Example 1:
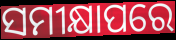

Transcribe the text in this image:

ସମୀକ୍ଷାପରେ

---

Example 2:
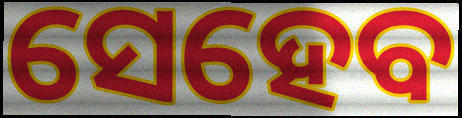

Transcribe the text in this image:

ସେହେବ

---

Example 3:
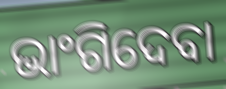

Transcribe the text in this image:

ଭାଂଗିଦେବା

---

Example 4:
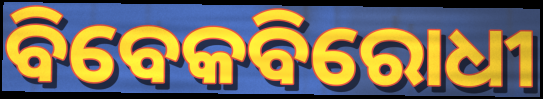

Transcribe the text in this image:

ବିବେକବିରୋଧୀ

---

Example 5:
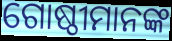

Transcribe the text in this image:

ଗୋଷ୍ଠୀମାନଙ୍କ